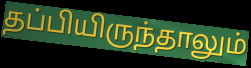
தப்பியிருந்தாலும்